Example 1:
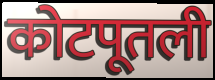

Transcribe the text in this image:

कोटपूतली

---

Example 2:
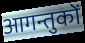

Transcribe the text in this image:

आगन्तुकों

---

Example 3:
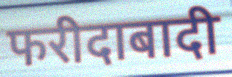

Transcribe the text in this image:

फरीदाबादी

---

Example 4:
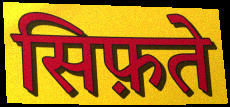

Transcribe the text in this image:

सिफ़ते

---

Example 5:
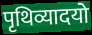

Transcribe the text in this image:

पृथिव्यादयो